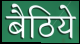
बैठिये